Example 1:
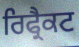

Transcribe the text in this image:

ਰਿਫ੍ਰੈਕਟ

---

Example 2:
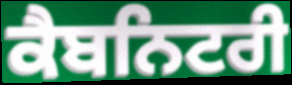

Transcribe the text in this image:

ਕੈਬਨਿਟਰੀ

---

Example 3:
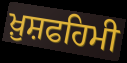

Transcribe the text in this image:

ਖ਼ੁਸ਼ਫਹਿਮੀ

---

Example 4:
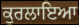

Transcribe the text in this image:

ਕੁਰਲਾਇਆ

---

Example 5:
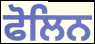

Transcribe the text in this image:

ਫੋਲਿਨ